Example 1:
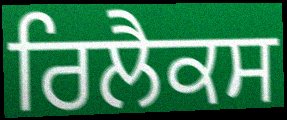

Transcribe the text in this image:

ਰਿਲੈਕਸ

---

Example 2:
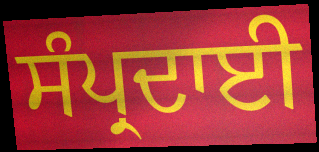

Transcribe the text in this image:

ਸੰਪ੍ਰਦਾਈ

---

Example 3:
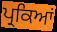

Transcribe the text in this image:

ਪ੍ਰਕਿਆਂ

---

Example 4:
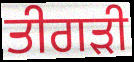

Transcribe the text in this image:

ਤੀਗੜੀ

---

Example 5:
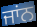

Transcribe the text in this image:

ਜਾਂਨ